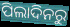
ପିଲାଦିନରୁ